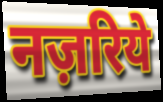
नज़रिये